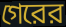
গেরের